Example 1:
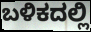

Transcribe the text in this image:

ಬಳಿಕದಲ್ಲಿ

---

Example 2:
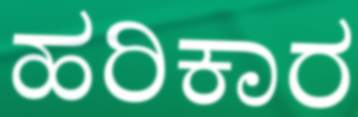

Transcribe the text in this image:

ಹರಿಕಾರ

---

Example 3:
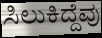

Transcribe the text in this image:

ಸಿಲುಕಿದ್ದೆವು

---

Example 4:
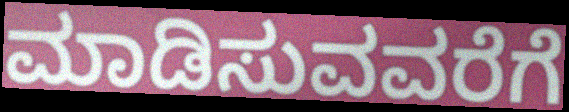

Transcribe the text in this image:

ಮಾಡಿಸುವವರೆಗೆ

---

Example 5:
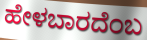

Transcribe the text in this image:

ಹೇಳಬಾರದೆಂಬ